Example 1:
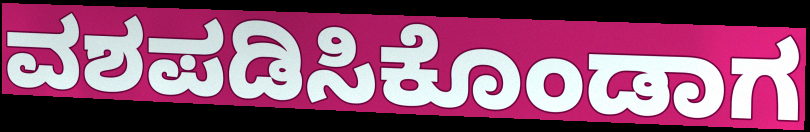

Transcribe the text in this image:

ವಶಪಡಿಸಿಕೊಂಡಾಗ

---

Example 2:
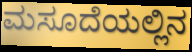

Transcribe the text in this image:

ಮಸೂದೆಯಲ್ಲಿನ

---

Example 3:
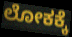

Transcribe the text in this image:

ಲೋಕಕ್ಕೆ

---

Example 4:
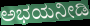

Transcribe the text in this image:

ಅಭಯನೀಡಿ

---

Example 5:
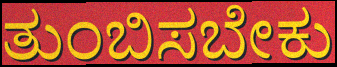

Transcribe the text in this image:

ತುಂಬಿಸಬೇಕು